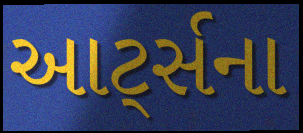
આર્ટ્સના